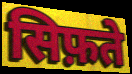
सिफ़ते